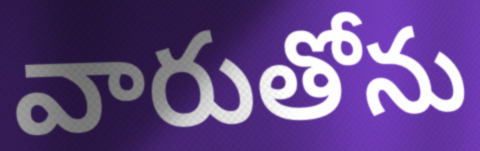
వారుతోను